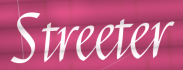
Streeter